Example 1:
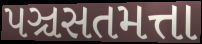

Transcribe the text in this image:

પઞ્ચસતમત્તા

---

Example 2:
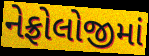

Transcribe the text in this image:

નેફ્રોલોજીમાં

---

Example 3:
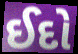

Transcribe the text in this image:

ઈદો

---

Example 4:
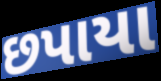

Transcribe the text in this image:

છપાયા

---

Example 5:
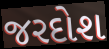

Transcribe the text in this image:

જરદોશ